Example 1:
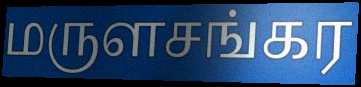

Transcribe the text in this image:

மருளசங்கர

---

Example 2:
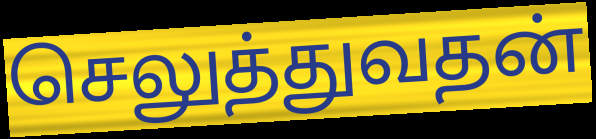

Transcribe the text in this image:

செலுத்துவதன்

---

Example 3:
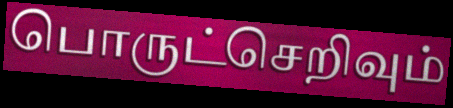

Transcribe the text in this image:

பொருட்செறிவும்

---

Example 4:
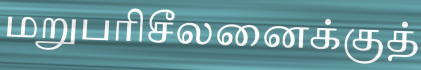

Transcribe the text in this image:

மறுபரிசீலனைக்குத்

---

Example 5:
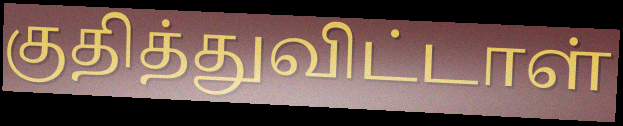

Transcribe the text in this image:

குதித்துவிட்டாள்